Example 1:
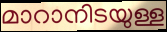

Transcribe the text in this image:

മാറാനിടയുള്ള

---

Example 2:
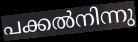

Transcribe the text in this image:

പക്കൽനിന്നു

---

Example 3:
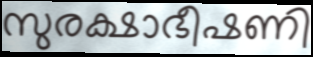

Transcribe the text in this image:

സുരക്ഷാഭീഷണി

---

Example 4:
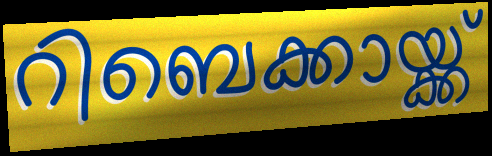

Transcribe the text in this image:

റിബെക്കായ്ക്ക്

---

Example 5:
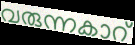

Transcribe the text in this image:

വരുന്നകാറ്